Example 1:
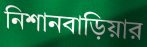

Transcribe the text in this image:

নিশানবাড়িয়ার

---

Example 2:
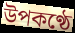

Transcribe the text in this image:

উপকণ্ঠে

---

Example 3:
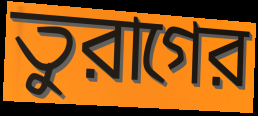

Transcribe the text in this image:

তুরাগের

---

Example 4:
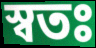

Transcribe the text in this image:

স্বতঃ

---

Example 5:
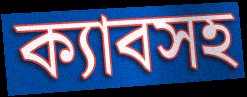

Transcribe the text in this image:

ক্যাবসহ